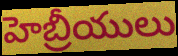
హెబ్రీయులు